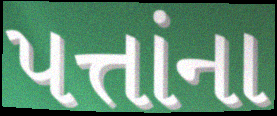
પત્તાંના